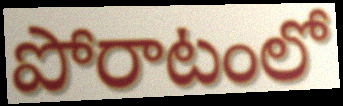
పోరాటంలో